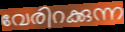
വേരിറക്കുന്ന